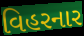
વિહરનાર